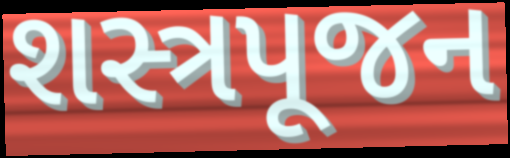
શસ્ત્રપૂજન